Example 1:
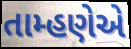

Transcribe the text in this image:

તામ્હણેએ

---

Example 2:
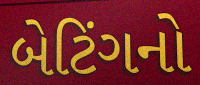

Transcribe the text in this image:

બેટિંગનો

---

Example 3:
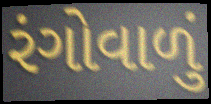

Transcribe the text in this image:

રંગોવાળું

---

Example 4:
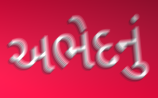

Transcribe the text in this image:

અભેદનું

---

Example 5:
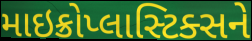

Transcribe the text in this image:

માઇક્રોપ્લાસ્ટિક્સને